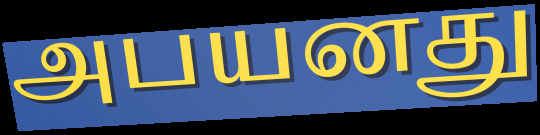
அபயனது